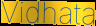
Vidhata